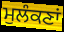
ਮੁਲੰਕਣਾਂ